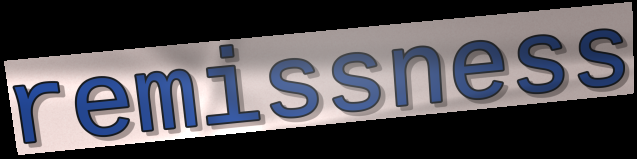
remissness